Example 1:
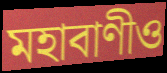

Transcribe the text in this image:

মহাবাণীও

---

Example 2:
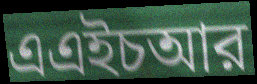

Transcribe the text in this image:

এএইচআর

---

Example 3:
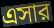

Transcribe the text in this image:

এসার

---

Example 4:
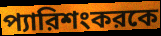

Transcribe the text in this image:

প্যারিশংকরকে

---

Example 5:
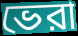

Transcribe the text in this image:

ভেরা